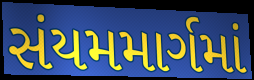
સંયમમાર્ગમાં